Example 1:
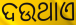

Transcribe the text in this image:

ଦଉଥାଏ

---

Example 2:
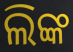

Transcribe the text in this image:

ଲିଙ୍କ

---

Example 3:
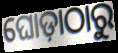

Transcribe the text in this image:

ଘୋଡ଼ାଠାରୁ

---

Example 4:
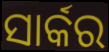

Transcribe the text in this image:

ସାର୍କର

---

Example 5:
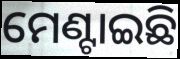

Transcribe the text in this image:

ମେଣ୍ଟାଇଛି